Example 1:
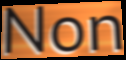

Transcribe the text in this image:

Non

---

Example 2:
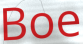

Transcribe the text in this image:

Boe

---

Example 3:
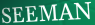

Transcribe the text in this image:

SEEMAN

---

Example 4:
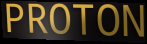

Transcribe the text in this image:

PROTON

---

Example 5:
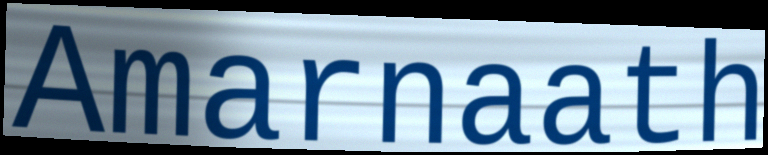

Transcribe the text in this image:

Amarnaath